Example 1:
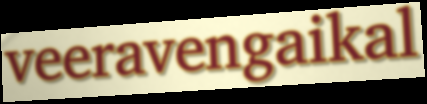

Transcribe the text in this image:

veeravengaikal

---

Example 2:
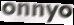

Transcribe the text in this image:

onnyo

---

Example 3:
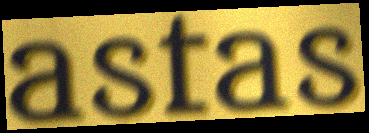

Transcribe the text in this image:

astas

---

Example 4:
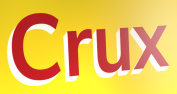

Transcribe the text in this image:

Crux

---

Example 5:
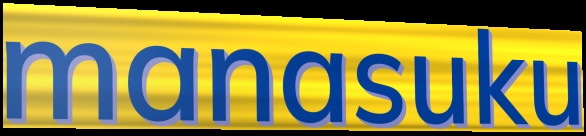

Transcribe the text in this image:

manasuku